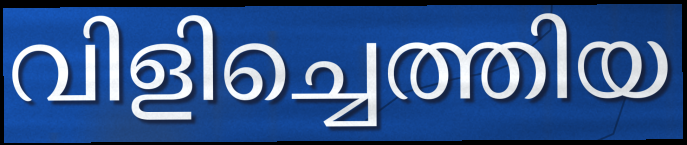
വിളിച്ചെത്തിയ